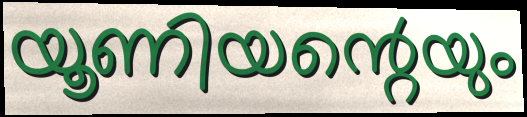
യൂണിയന്റെയും